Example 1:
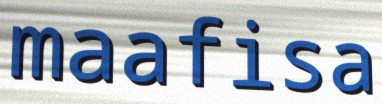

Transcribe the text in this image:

maafisa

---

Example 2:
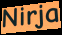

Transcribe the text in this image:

Nirja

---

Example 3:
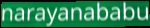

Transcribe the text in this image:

narayanababu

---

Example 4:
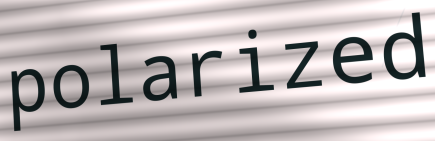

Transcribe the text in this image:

polarized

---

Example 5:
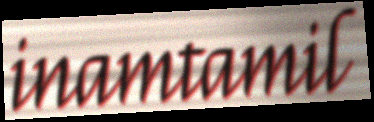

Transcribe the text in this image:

inamtamil